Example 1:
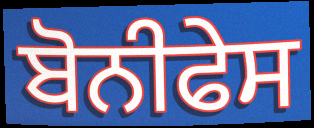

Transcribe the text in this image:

ਬੋਨੀਫੇਸ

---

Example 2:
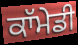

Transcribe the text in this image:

ਕਾੱਮੇਡੀ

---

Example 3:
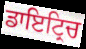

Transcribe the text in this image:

ਡਾਇਟ੍ਰਿਚ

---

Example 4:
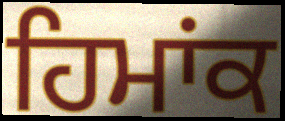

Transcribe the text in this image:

ਹਿਮਾਂਕ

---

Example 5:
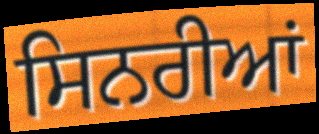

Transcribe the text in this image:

ਸਿਨਰੀਆਂ